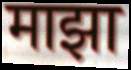
माझा